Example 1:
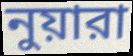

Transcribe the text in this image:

নুয়ারা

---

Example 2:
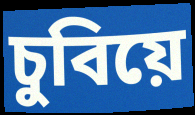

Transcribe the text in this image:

চুবিয়ে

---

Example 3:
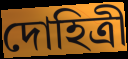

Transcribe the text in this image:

দোহিত্রী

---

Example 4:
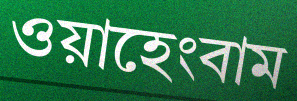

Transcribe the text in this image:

ওয়াহেংবাম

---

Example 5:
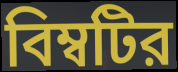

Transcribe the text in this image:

বিম্বটির